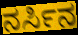
ನರ್ಸಿನ